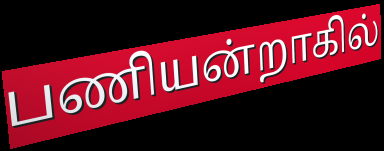
பணியன்றாகில்